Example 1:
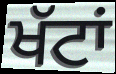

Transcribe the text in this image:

ਖੱਟਾਂ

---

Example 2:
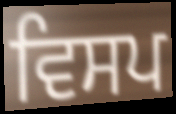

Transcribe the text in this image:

ਵਿਸਪ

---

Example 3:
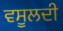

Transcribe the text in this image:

ਵਸੂਲਦੀ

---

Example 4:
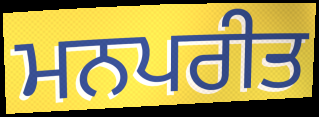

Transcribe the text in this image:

ਮਨਪਰੀਤ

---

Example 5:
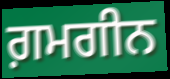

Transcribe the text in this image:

ਗ਼ਮਗੀਨ